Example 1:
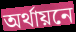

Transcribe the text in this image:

অর্থায়নে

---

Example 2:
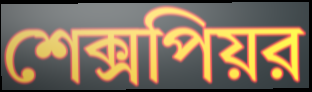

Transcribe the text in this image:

শেক্সপিয়র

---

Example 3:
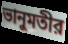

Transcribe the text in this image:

ভানুমতীর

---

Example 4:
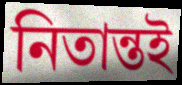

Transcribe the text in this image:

নিতান্তই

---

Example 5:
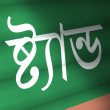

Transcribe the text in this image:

ষ্ট্যান্ড